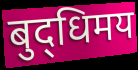
बुद्धिमय